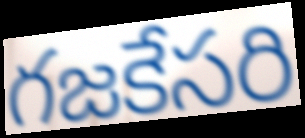
గజకేసరి